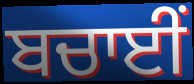
ਬਚਾਈਂ